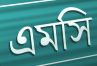
এমসি